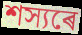
শস্যৰে